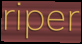
riper